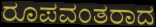
ರೂಪವಂತರಾದ